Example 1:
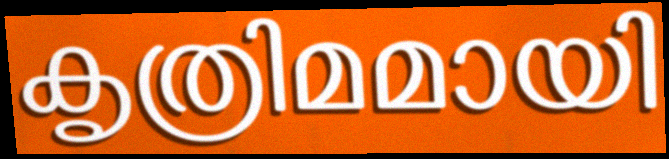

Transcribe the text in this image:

കൃത്രിമമായി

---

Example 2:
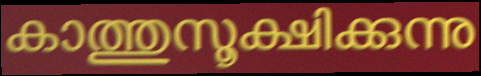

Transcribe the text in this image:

കാത്തുസൂക്ഷിക്കുന്നു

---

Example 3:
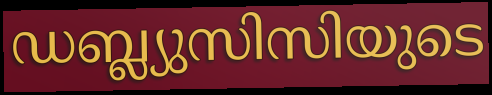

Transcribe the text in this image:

ഡബ്ല്യുസിസിയുടെ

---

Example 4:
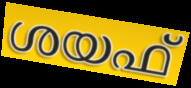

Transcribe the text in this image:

ശയഫ്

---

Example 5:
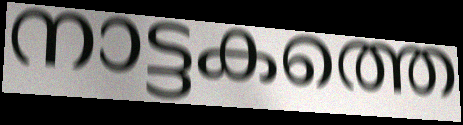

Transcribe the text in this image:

നാട്ടകത്തെ